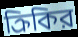
ক্রিকির